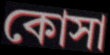
কোসা